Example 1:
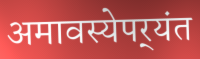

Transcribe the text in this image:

अमावस्येपर्यंत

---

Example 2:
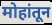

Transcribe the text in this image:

मोहांतून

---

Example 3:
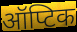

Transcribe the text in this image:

ऑप्टिक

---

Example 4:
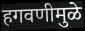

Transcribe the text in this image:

हगवणीमुळे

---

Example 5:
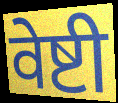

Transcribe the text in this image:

वेष्टी